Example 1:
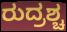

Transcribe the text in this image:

ರುದ್ರಶ್ಚ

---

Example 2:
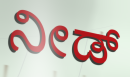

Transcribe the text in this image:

ನೀಡ್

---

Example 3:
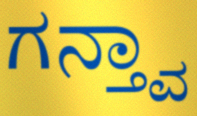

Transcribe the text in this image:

ಗನ್ತ್ವಾ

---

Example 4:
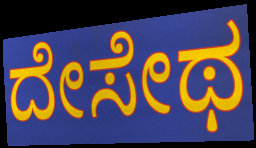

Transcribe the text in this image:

ದೇಸೇಥ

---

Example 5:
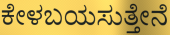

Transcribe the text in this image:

ಕೇಳಬಯಸುತ್ತೇನೆ